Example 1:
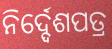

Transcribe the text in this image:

ନିର୍ଦ୍ଦେଶପତ୍ର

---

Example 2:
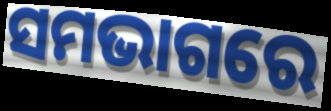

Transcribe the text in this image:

ସମଭାଗରେ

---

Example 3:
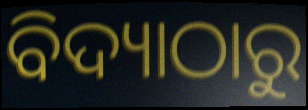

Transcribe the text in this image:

ବିଦ୍ୟାଠାରୁ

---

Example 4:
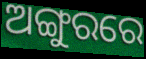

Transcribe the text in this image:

ଅଙ୍ଗୁରରେ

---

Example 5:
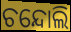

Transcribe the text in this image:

ଚନ୍ଦୋଲି